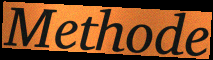
Methode